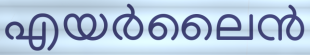
എയർലൈൻ